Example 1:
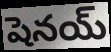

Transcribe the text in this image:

షెనయ్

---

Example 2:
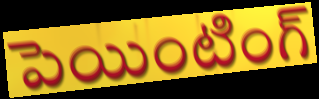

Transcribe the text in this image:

పెయింటింగ్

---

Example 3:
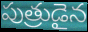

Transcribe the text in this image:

పుత్రుడైన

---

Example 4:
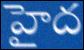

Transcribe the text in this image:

హైద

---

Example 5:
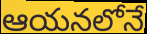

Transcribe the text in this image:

ఆయనలోనే